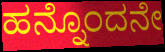
ಹನ್ನೊಂದನೇ